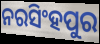
ନରସିଂହପୁର